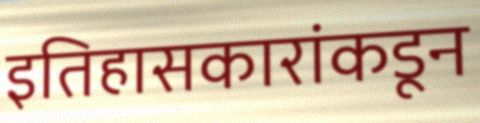
इतिहासकारांकडून